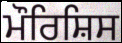
ਮੌਰਿਸ਼ਿਸ